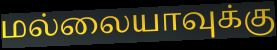
மல்லையாவுக்கு